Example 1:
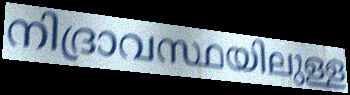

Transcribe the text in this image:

നിദ്രാവസ്ഥയിലുള്ള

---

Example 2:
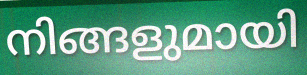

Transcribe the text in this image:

നിങ്ങളുമായി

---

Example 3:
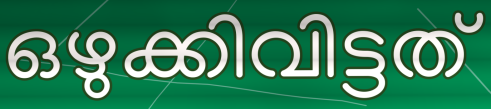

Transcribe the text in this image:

ഒഴുക്കിവിട്ടത്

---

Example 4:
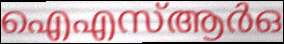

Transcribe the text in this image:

ഐഎസ്ആർഒ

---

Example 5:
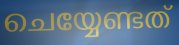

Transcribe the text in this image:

ചെയ്യേണ്ടത്